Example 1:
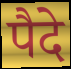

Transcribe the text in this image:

पैदे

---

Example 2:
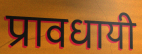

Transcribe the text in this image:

प्रावधायी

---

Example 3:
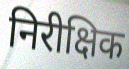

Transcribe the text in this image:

निरीक्षिक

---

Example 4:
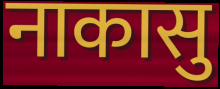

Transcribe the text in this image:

नाकासु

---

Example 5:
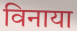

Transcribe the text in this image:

विनाया